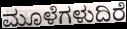
ಮೂಳೆಗಳುದಿರೆ